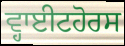
ਵ੍ਹਾਈਟਹੋਰਸ